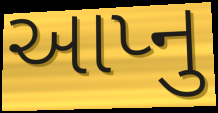
આપ્નુ